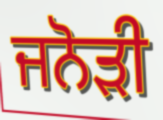
ਜਨੋੜੀ